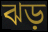
ঝড়